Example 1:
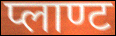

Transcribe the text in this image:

प्लाण्ट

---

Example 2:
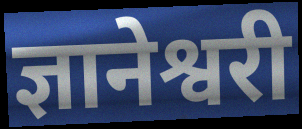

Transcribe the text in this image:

ज्ञानेश्वरी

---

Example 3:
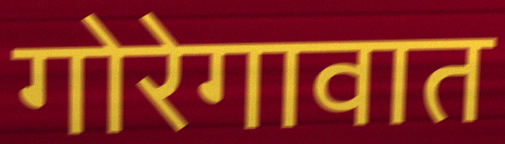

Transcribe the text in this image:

गोरेगावात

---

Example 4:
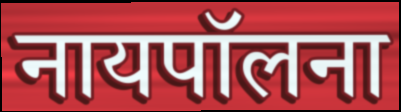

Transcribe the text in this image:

नायपॉलना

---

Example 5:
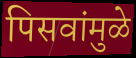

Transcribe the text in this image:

पिसवांमुळे